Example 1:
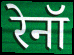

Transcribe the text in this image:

रेनॉ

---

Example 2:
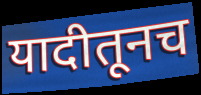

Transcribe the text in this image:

यादीतूनच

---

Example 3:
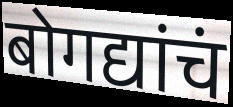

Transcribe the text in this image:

बोगद्यांचं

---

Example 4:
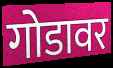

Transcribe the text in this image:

गोडावर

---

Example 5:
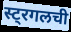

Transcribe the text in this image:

स्ट्रगलची